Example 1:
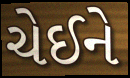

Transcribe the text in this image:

ચેઈને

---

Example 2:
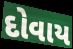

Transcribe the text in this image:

દોવાય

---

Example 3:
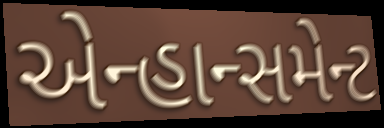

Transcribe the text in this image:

એન્હાન્સમેન્ટ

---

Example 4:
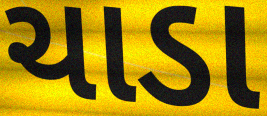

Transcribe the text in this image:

ચાડા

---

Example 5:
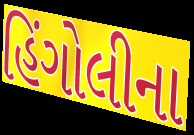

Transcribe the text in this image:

હિંગોલીના